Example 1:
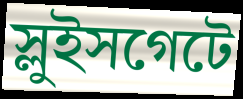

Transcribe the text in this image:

স্লুইসগেটে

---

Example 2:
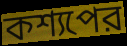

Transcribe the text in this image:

কশ্যপের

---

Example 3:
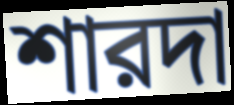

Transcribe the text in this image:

শারদা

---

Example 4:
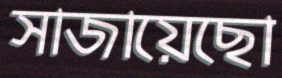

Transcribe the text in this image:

সাজায়েছো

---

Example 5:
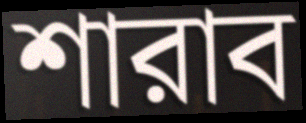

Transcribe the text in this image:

শারাব